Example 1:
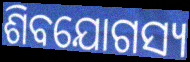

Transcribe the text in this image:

ଶିବଯୋଗସ୍ୟ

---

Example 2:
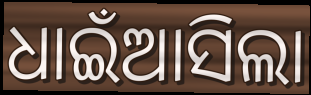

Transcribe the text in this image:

ଧାଇଁଆସିଲା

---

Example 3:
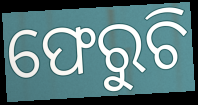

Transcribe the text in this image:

ଫେରୁଚି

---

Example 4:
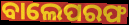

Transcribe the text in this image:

ବାଲେପରଫ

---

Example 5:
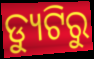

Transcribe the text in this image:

ଡ୍ୟୁଟିରୁ